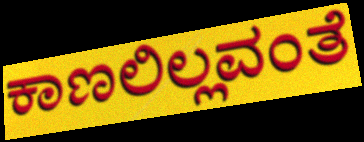
ಕಾಣಲಿಲ್ಲವಂತೆ